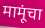
मामूंचा